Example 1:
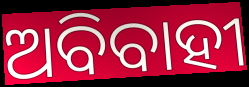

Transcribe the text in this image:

ଅବିବାହୀ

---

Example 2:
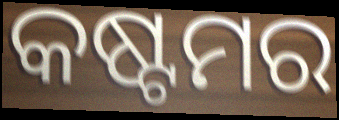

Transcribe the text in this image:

କଷ୍ଟମର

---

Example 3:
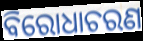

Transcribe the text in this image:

ବିରୋଧାଚରଣ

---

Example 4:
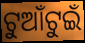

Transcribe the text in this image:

ଟୁଆଁଟୁଇଁ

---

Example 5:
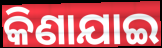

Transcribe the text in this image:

କିଣାଯାଇ